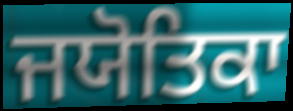
ਜਯੋਤਿਕਾ